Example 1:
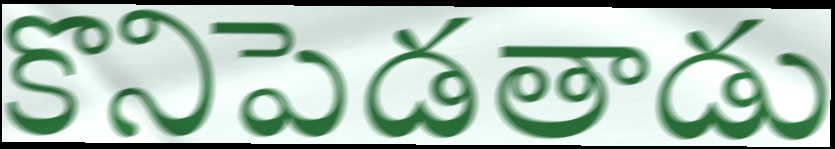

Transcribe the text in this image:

కొనిపెడతాడు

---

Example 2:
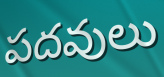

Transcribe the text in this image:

పదవులు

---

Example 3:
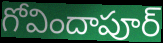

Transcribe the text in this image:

గోవిందాపూర్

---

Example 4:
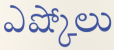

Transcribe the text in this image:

ఎష్కోలు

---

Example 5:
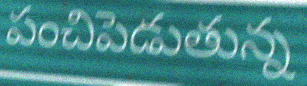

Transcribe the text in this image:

పంచిపెడుతున్న